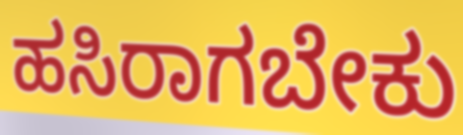
ಹಸಿರಾಗಬೇಕು